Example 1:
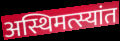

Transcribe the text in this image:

अस्थिमत्स्यांत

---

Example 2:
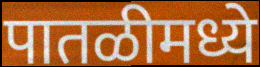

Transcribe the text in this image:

पातळीमध्ये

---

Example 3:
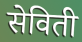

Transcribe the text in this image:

सेविती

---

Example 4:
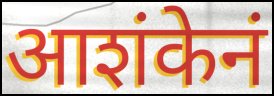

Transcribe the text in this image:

आशंकेनं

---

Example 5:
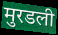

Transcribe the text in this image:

मुरडली